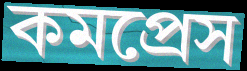
কমপ্রেস